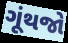
ગૂંથજો